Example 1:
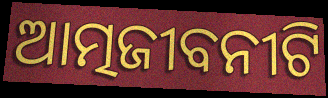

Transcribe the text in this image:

ଆତ୍ମଜୀବନୀଟି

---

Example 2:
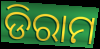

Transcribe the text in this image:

ଡିରାମ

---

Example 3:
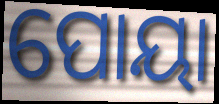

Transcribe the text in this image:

ପୋୟା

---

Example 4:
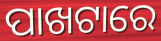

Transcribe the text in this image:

ପାଖଟାରେ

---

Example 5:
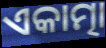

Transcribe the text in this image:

ଏକାତ୍ମା